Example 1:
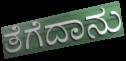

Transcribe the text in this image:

ತೆಗೆದಾನು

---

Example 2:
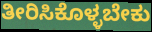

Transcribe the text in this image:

ತೀರಿಸಿಕೊಳ್ಳಬೇಕು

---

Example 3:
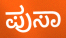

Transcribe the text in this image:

ಪುಸಾ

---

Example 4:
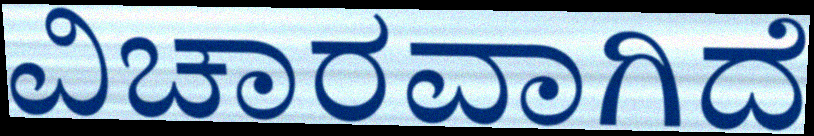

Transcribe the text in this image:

ವಿಚಾರವಾಗಿದೆ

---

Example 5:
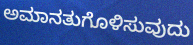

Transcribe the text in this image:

ಅಮಾನತುಗೊಳಿಸುವುದು